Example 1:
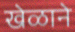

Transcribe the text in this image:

खेळाने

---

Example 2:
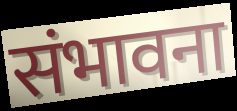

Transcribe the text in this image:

संभावना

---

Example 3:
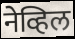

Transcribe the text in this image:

नेव्हिल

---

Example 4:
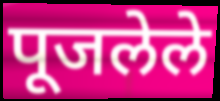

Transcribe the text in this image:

पूजलेले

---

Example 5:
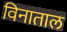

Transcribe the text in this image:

विनाताल